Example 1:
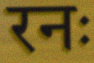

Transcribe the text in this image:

रनः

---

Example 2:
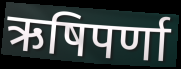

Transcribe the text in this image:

ऋषिपर्णा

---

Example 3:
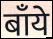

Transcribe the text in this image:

बाँये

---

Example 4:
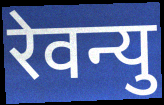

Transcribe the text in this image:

रेवन्यु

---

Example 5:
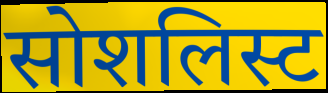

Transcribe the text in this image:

सोशलिस्‍ट